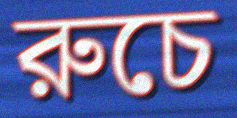
রুচে